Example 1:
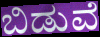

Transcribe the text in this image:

ಬಿಡುವೆ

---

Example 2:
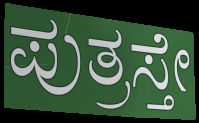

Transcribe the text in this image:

ಪುತ್ರಸ್ತೇ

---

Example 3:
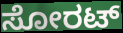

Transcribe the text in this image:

ಸೋರಟ್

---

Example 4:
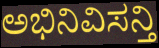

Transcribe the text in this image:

ಅಭಿನಿವಿಸನ್ತಿ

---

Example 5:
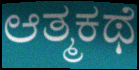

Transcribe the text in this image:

ಆತ್ಮಕಥೆ